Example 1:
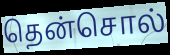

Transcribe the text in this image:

தென்சொல்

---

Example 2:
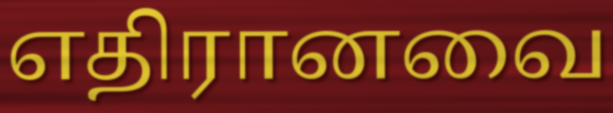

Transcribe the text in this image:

எதிரானவை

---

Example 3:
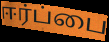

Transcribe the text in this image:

ஈர்ப்பை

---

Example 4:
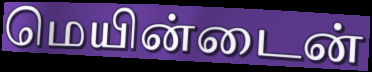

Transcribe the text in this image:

மெயின்டைன்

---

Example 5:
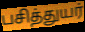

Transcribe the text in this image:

பசித்துயர்